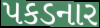
પકડનાર